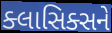
ક્લાસિક્સને